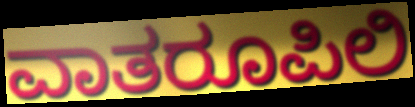
ವಾತರೂಪಿಲಿ